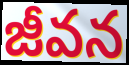
జీవన